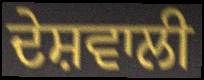
ਦੇਸ਼ਵਾਲੀ